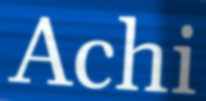
Achi